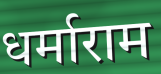
धर्माराम